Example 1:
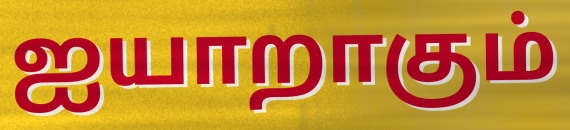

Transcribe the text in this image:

ஐயாறாகும்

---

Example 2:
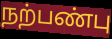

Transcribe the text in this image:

நற்பண்பு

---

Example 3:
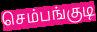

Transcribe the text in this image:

செம்பங்குடி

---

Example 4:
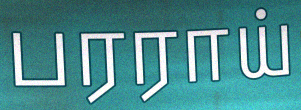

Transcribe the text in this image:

பரராய்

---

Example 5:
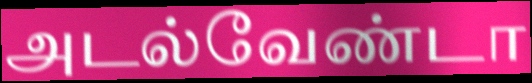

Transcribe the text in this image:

அடல்வேண்டா